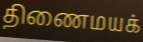
திணைமயக்